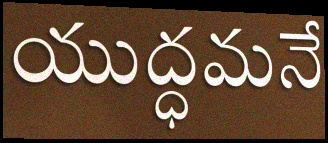
యుద్ధమనే